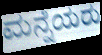
ಮನ್ನೆಯರು